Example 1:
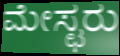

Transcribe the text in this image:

ಮೇಸ್ಟರು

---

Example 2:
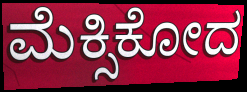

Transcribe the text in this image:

ಮೆಕ್ಸಿಕೋದ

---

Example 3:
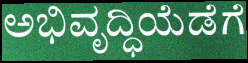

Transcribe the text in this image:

ಅಭಿವೃದ್ಧಿಯೆಡೆಗೆ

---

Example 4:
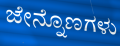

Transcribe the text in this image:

ಜೇನ್ನೊಣಗಳು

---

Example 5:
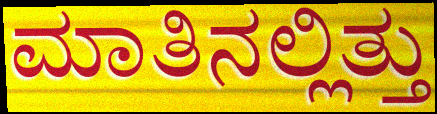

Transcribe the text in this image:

ಮಾತಿನಲ್ಲಿತ್ತು